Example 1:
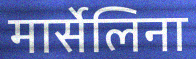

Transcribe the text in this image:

मार्सेलिना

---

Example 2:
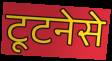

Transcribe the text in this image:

टूटनेसे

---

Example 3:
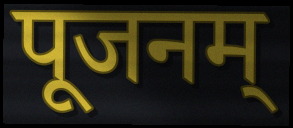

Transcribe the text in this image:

पूजनम्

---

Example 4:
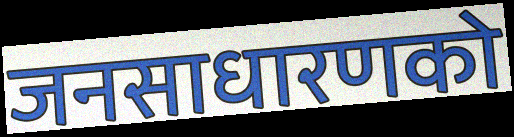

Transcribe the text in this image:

जनसाधारणको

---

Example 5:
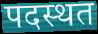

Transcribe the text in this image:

पदस्थत